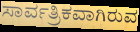
ಸಾರ್ವತ್ರಿಕವಾಗಿರುವ